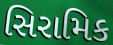
સિરામિક